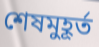
শেষমুহূর্ত